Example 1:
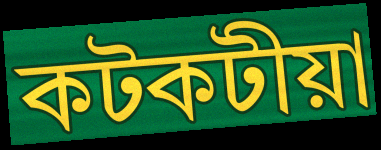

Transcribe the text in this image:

কটকটীয়া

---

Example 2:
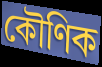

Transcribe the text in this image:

কৌণিক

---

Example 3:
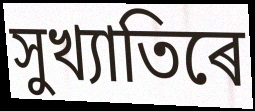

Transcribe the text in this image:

সুখ্যাতিৰে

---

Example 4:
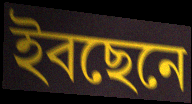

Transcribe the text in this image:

ইবছেনে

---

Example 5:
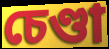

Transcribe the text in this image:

চেণ্ডা